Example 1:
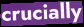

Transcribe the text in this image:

crucially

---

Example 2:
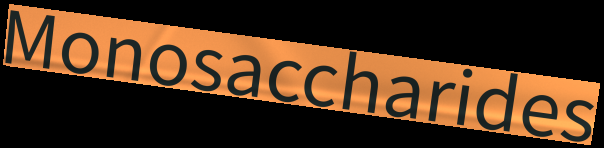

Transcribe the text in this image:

Monosaccharides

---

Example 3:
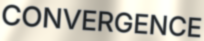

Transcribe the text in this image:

CONVERGENCE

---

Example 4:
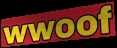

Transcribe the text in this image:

wwoof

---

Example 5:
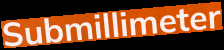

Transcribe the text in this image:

Submillimeter